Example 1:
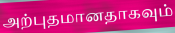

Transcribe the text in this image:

அற்புதமானதாகவும்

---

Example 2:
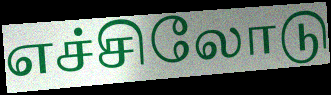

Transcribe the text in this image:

எச்சிலோடு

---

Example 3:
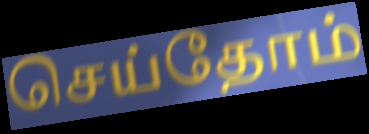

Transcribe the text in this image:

செய்தோம்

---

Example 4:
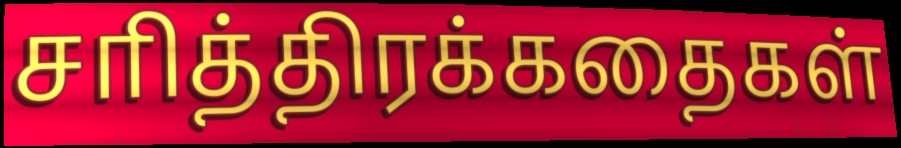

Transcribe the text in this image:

சரித்திரக்கதைகள்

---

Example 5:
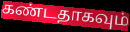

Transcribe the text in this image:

கண்டதாகவும்